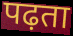
पढ़ता